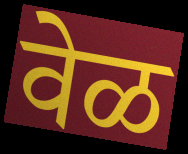
वेळ